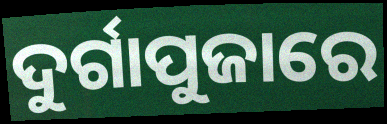
ଦୁର୍ଗାପୁଜାରେ